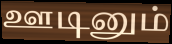
ஊடினும்